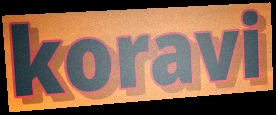
koravi